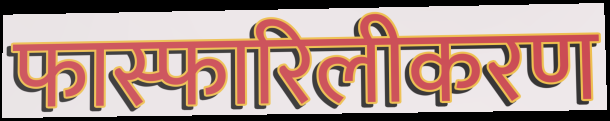
फास्फारिलीकरण